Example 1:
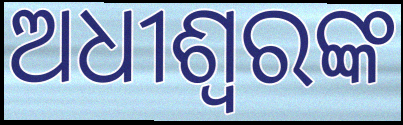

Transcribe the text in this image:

ଅଧୀଶ୍ୱରଙ୍କ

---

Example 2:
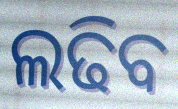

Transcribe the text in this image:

ଲଢିବ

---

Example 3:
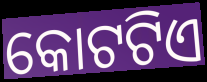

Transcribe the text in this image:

କୋଟଟିଏ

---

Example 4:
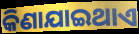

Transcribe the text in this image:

କିଣାଯାଇଥାଏ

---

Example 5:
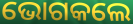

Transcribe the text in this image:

ଭୋଗକଲେ